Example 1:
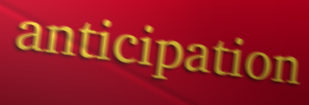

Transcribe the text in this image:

anticipation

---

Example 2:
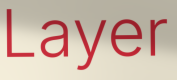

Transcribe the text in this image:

Layer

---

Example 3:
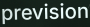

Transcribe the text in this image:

prevision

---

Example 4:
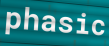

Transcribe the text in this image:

phasic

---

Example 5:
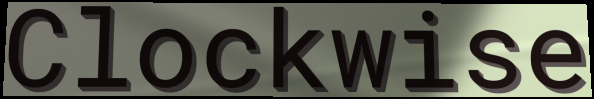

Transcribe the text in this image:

Clockwise